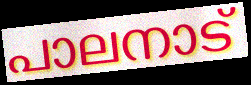
പാലനാട്